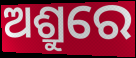
ଅଶ୍ରୁରେ